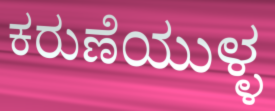
ಕರುಣೆಯುಳ್ಳ